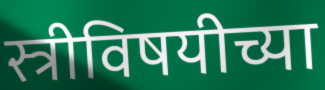
स्त्रीविषयीच्या